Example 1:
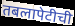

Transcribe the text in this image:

तबलापेटीची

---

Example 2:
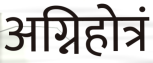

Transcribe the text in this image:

अग्निहोत्रं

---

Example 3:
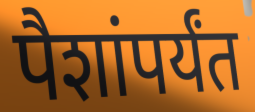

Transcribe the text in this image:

पैशांपर्यंत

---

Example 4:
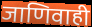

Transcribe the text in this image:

जाणिवाही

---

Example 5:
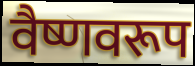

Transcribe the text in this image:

वैष्णवरूप